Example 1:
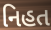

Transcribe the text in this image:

નિહત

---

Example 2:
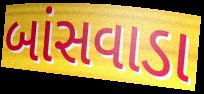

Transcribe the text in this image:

બાંસવાડા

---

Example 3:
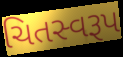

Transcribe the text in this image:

ચિતસ્વરૂપ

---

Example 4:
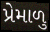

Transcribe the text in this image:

પ્રેમાળુ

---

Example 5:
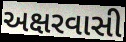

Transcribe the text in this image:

અક્ષરવાસી